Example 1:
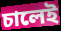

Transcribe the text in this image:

চালেই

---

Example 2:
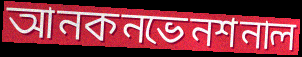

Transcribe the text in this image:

আনকনভেনশনাল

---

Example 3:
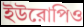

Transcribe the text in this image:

ইউরোপিও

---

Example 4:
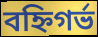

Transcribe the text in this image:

বহ্নিগর্ভ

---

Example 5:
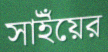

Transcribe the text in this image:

সাইঁয়ের